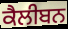
ਕੈਲੀਬਨ